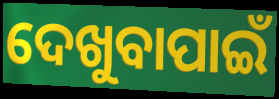
ଦେଖୁବାପାଇଁ